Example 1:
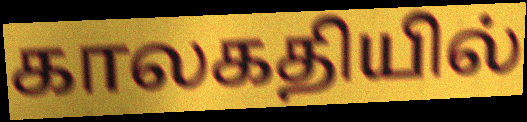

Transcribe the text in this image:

காலகதியில்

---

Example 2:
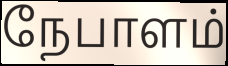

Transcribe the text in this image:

நேபாளம்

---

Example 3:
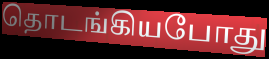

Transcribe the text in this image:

தொடங்கியபோது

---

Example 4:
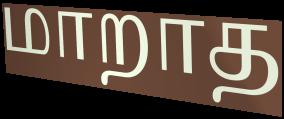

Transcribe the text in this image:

மாறாத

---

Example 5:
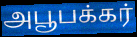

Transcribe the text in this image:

அபூபக்கர்